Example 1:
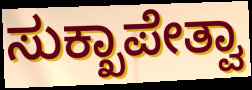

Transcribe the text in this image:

ಸುಕ್ಖಾಪೇತ್ವಾ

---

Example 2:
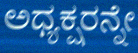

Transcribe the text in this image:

ಅಧ್ಯಕ್ಷರನ್ನೇ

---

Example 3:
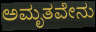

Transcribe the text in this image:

ಅಮೃತವೇನು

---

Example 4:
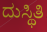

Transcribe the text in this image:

ದುಸ್ಥಿತಿ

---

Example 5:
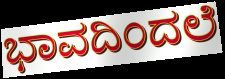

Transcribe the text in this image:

ಭಾವದಿಂದಲೆ